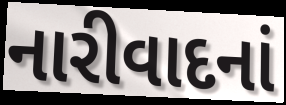
નારીવાદનાં